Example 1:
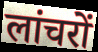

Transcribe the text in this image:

लांचरों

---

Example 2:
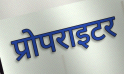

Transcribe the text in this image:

प्रोपराइटर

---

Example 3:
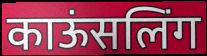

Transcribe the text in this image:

काऊंसलिंग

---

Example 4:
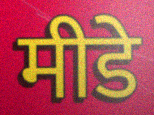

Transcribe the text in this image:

मीडे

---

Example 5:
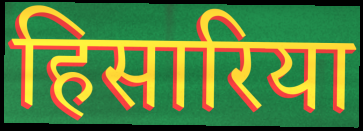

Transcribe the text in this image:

हिसारिया